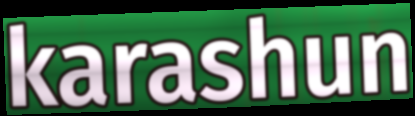
karashun